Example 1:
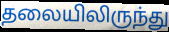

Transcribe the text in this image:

தலையிலிருந்து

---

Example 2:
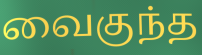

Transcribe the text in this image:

வைகுந்த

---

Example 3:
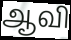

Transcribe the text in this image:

ஆவி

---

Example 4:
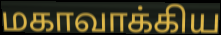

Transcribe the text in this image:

மகாவாக்கிய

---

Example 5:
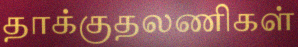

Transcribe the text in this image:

தாக்குதலணிகள்